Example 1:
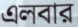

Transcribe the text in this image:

এলবার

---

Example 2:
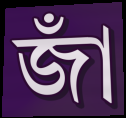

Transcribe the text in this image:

জাঁ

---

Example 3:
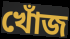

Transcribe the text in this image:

খোঁজ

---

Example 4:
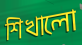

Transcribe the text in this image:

শিখালো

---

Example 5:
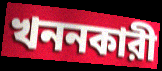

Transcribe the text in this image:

খননকারী